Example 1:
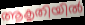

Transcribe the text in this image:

ആകൃതിയിൽ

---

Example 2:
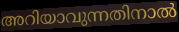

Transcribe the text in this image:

അറിയാവുന്നതിനാൽ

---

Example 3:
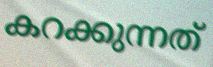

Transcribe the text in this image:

കറക്കുന്നത്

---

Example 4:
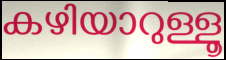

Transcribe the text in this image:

കഴിയാറുള്ളൂ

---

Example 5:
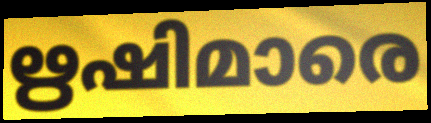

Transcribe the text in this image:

ഋഷിമാരെ